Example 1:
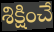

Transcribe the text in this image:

శిక్షించే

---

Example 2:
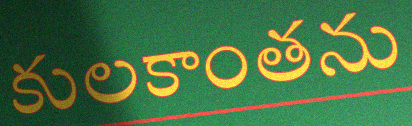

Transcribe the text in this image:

కులకాంతను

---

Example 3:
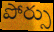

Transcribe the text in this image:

పోర్సు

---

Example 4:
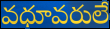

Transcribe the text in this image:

వధూవరులే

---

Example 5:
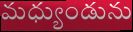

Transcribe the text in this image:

మధ్యుండును